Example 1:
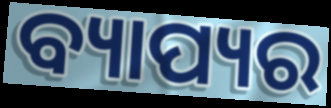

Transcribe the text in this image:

ବ୍ୟାପ୍ୟର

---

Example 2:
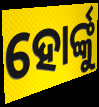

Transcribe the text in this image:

ହୋର୍ଙ୍କୁ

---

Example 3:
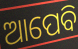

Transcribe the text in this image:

ଆପେବି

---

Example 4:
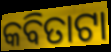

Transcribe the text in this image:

କବିତାଟା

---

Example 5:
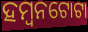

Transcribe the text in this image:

ହମ୍ବନଟୋଟା